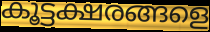
കൂട്ടക്ഷരങ്ങളെ